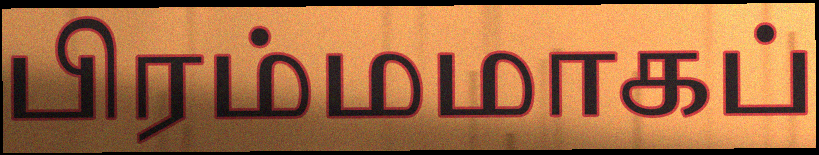
பிரம்மமாகப்